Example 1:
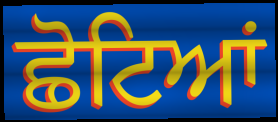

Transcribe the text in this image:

ਛੋਟਿਆਂ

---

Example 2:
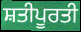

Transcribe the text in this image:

ਸ਼ਤੀਪੂਰਤੀ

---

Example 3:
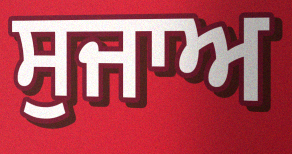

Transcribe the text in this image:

ਸੁਜਾਅ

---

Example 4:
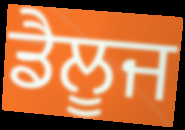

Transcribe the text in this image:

ਡੈਲੂਜ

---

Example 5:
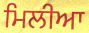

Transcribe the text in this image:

ਮਿਲੀਆ